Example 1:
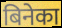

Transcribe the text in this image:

बिनेका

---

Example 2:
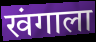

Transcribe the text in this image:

खंगाला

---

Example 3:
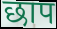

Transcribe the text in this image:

छाप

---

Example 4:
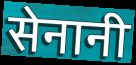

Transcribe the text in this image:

सेनानी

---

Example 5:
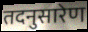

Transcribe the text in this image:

तदनुसारेण